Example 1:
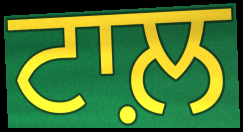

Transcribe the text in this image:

ਟਾਲ਼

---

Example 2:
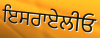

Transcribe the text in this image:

ਇਸਰਾਏਲੀਓ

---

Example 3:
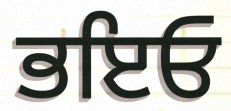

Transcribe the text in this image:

ਭਇਓ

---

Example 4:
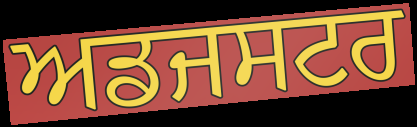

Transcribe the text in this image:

ਅਡਜਸਟਰ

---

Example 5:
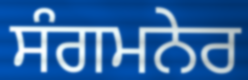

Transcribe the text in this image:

ਸੰਗਮਨੇਰ